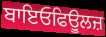
ਬਾਇਓਫਿਊਲਜ਼